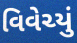
વિવેચ્યું